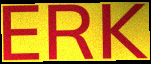
ERK